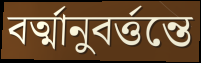
বর্ত্মানুবর্ত্তন্তে